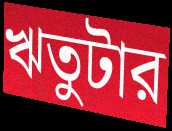
ঋতুটার